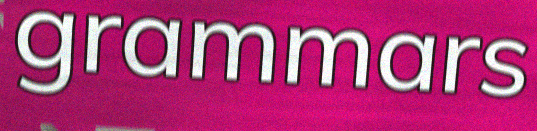
grammars